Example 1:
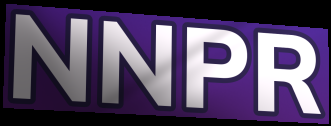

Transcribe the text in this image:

NNPR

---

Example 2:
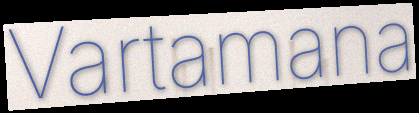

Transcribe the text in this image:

Vartamana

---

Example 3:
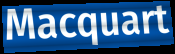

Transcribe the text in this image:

Macquart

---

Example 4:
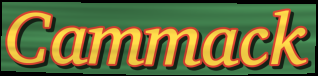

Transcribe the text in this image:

Cammack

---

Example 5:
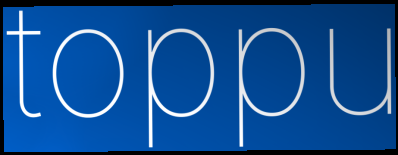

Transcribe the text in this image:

toppu